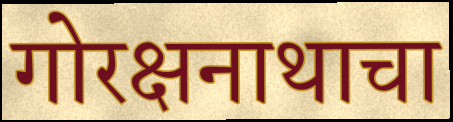
गोरक्षनाथाचा